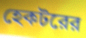
হেকটরের